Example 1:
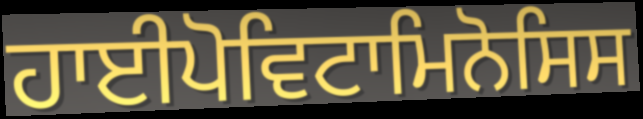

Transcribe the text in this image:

ਹਾਈਪੋਵਿਟਾਮਿਨੋਸਿਸ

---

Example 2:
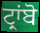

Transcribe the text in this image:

ਟ੍ਰਾਂਬੋ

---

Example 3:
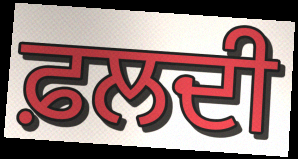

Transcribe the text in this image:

ਫ਼ਲਦੀ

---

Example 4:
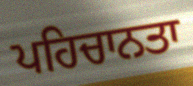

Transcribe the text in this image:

ਪਹਿਚਾਨਤਾ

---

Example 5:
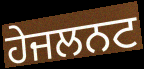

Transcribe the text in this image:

ਹੇਜਲਨਟ